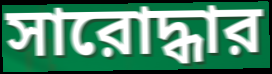
সারোদ্ধার